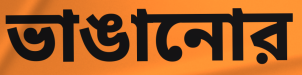
ভাঙানোর